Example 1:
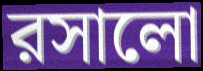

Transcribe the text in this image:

রসালো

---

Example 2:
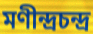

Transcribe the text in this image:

মণীন্দ্রচন্দ্র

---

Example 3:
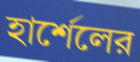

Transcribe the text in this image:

হার্শেলের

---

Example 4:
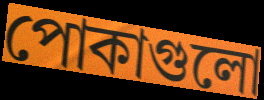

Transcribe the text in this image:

পোকাগুলো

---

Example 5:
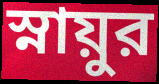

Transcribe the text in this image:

স্নায়ুর